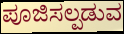
ಪೂಜಿಸಲ್ಪಡುವ